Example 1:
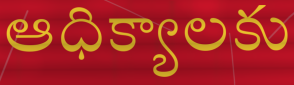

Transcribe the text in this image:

ఆధిక్యాలకు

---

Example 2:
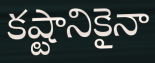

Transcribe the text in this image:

కష్టానికైనా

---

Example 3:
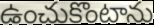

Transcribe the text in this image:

ఉంచుకొంటాను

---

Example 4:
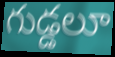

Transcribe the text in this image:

గుడ్డలూ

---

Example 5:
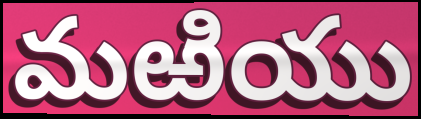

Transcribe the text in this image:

మఱియు